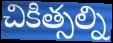
చికిత్సల్ని